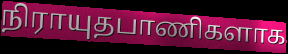
நிராயுதபாணிகளாக